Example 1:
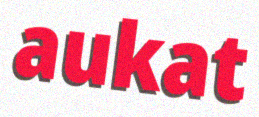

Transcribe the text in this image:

aukat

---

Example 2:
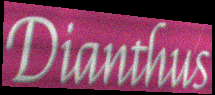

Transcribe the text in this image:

Dianthus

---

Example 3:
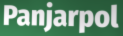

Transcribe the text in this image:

Panjarpol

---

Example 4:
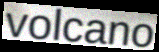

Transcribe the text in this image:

volcano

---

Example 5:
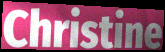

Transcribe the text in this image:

Christine